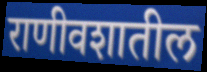
राणीवशातील